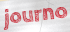
journo